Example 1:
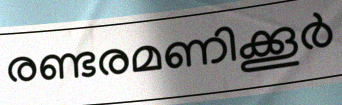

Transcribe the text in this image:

രണ്ടരമണിക്കൂർ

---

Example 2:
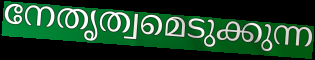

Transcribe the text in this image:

നേതൃത്വമെടുക്കുന്ന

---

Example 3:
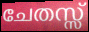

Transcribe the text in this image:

ചേതസ്സ്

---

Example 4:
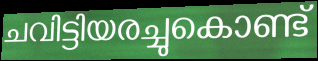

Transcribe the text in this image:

ചവിട്ടിയരച്ചുകൊണ്ട്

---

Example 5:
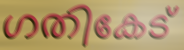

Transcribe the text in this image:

ഗതികേട്